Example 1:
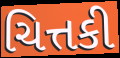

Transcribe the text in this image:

ચિત્તકી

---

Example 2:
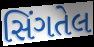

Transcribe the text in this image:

સિંગતેલ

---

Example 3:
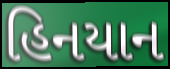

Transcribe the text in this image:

હિનયાન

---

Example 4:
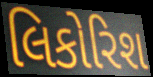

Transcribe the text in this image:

લિકોરિશ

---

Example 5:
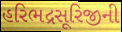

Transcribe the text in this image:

હરિભદ્રસૂરિજીની